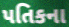
પતિકના